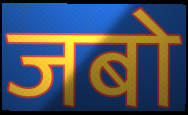
जबो